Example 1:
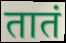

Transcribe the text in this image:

तातं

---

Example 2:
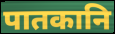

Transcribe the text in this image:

पातकानि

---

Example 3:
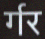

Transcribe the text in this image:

र्गर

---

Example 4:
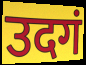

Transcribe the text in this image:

उदगं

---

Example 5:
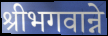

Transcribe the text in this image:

श्रीभगवान्ने